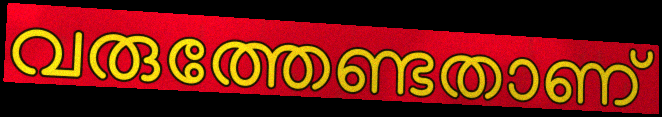
വരുത്തേണ്ടതാണ്